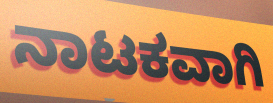
ನಾಟಕವಾಗಿ